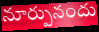
నూర్పునందు